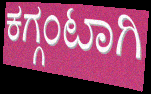
ಕಗ್ಗಂಟಾಗಿ